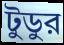
টুডুর